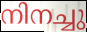
നിനച്ചു